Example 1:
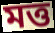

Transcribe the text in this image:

মত্ত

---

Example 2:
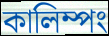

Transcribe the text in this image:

কালিম্পং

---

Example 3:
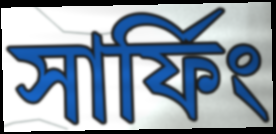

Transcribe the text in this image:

সার্ফিং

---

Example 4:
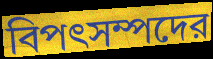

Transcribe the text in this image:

বিপৎসম্পদের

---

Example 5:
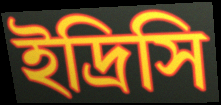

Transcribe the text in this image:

ইদ্রিসি